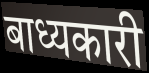
बाध्‍यकारी